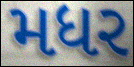
મધર